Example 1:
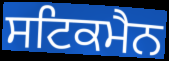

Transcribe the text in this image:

ਸਟਿਕਮੈਨ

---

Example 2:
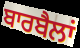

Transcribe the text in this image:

ਬਾਰਬੈਲਾਂ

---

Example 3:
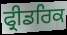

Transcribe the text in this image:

ਫ੍ਰੀਡਰਿਕ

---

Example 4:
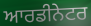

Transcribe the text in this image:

ਆਰਡੀਨੇਟਰ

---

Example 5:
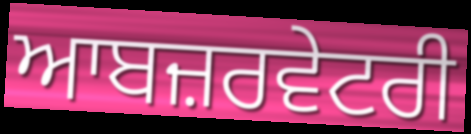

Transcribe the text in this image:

ਆਬਜ਼ਰਵੇਟਰੀ